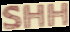
SHH